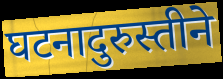
घटनादुरुस्तीने